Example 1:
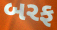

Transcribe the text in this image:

બરફ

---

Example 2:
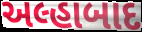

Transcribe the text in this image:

અલ્હાબાદ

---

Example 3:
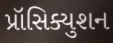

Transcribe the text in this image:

પ્રૉસિક્યુશન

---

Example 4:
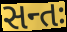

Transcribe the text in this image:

સન્તઃ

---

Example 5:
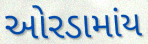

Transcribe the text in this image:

ઓરડામાંય